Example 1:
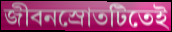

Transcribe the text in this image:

জীবনস্রোতটিতেই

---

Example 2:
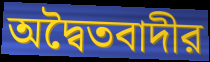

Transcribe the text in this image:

অদ্বৈতবাদীর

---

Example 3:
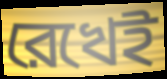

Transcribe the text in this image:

রেখেই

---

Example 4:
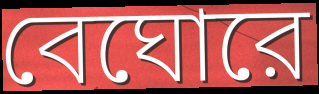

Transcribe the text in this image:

বেঘোরে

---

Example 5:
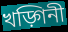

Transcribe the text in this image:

খড়্গিনী